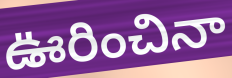
ఊరించినా